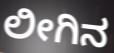
ಲೀಗಿನ